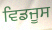
ਵਿਡਜੂਸ